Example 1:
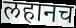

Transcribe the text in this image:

लहानच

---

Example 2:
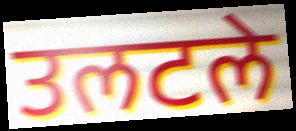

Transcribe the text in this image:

उलटले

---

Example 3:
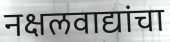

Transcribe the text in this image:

नक्षलवाद्यांचा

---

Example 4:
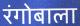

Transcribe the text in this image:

रंगोबाला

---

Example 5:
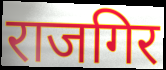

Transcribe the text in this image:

राजगिर